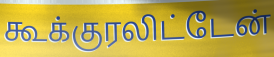
கூக்குரலிட்டேன்